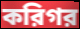
করিগর